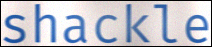
shackle